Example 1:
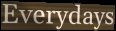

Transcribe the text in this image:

Everydays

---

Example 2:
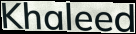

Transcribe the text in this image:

Khaleed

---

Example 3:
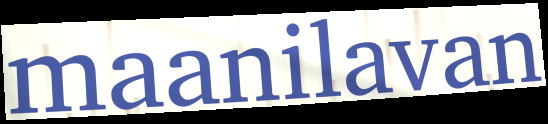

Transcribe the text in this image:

maanilavan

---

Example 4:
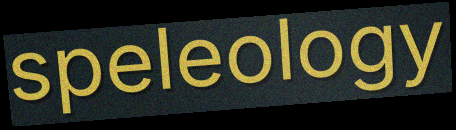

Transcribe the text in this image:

speleology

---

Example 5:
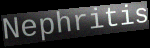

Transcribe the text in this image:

Nephritis